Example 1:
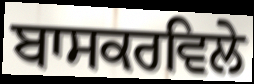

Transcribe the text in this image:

ਬਾਸਕਰਵਿਲੇ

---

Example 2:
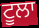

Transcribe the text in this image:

ਟੂਲਾ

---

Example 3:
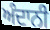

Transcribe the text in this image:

ਅੰਦਾਨੀ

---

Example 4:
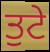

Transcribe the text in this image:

ਤੁਟੇ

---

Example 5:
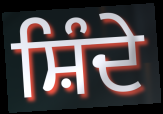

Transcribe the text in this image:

ਸ਼ਿੰਦੇ